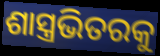
ଶାସ୍ତ୍ରଭିତରକୁ